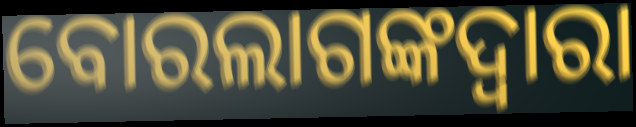
ବୋରଲାଗଙ୍କଦ୍ୱାରା